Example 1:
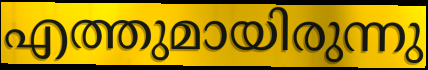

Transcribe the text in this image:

എത്തുമായിരുന്നു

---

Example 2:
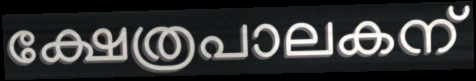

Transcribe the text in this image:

ക്ഷേത്രപാലകന്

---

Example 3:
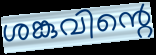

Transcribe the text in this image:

ശങ്കുവിന്റെ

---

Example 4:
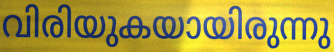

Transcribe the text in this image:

വിരിയുകയായിരുന്നു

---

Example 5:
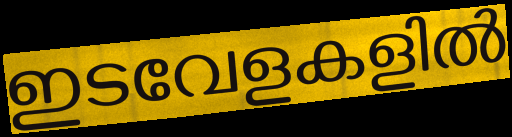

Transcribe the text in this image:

ഇടവേളകളിൽ